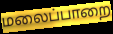
மலைப்பாறை